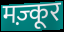
मज़्कूर